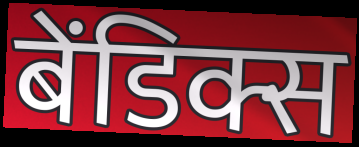
बेंडिक्स